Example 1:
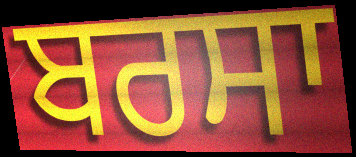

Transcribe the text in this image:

ਬਰਸਾ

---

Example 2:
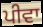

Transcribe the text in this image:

ਪੀਵਾ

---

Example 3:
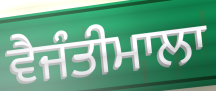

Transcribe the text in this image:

ਵੈਜੰਤੀਮਾਲਾ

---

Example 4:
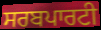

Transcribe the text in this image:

ਸਰਬਪਾਰਟੀ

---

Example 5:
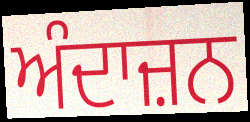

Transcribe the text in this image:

ਅੰਦਾਜ਼ਨ